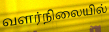
வளர்நிலையில்